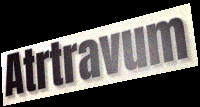
Atrtravum